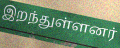
இறந்துள்ளனர்